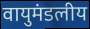
वायुमंडलीय